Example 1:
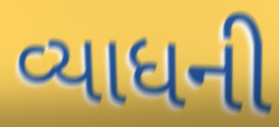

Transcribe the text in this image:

વ્યાધની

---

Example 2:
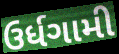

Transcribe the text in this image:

ઉર્ધગામી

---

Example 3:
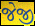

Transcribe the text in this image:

જેજી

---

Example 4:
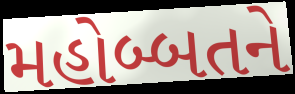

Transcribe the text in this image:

મહોબ્બતને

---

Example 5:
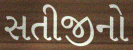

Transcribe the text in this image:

સતીજીનો